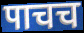
पाचच